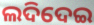
ଲଦିଦେଇ